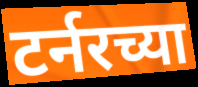
टर्नरच्या